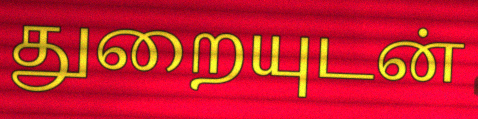
துறையுடன்